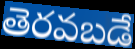
తెరవబడే